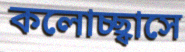
কলোচ্ছ্বাসে